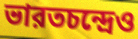
ভারতচন্দ্রেও